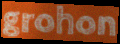
grohon